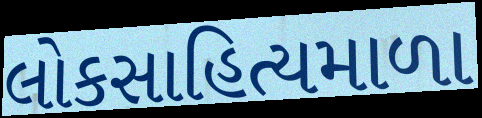
લોકસાહિત્યમાળા